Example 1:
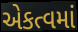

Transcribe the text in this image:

એકત્વમાં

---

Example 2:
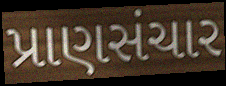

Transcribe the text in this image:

પ્રાણસંચાર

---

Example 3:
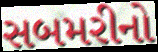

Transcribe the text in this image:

સબમરીનો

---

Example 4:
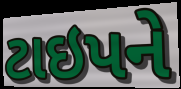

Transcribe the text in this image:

ટાઇપને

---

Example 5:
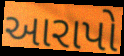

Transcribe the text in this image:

આરાપો